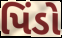
પિંડો